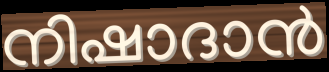
നിഷാദാൻ